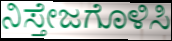
ನಿಸ್ತೇಜಗೊಳಿಸಿ